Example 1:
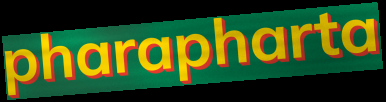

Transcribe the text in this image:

pharapharta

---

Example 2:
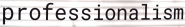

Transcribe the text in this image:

professionalism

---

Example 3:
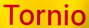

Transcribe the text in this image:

Tornio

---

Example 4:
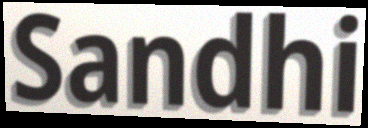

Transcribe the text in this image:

Sandhi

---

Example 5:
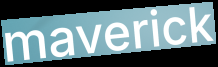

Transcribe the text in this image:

maverick